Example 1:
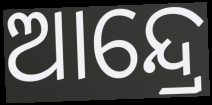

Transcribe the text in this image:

ଆନ୍ଦ୍ରେ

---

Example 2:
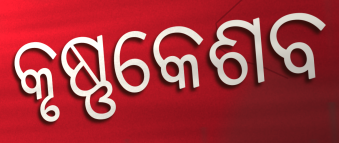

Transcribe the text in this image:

କୃଷ୍ଣକେଶବ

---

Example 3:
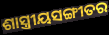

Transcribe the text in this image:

ଶାସ୍ତ୍ରୀୟସଙ୍ଗୀତର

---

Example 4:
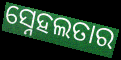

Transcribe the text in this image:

ସ୍ନେହଲତାର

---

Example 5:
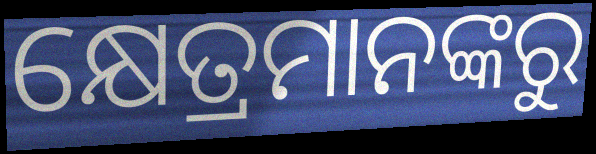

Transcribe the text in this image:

କ୍ଷେତ୍ରମାନଙ୍କରୁ